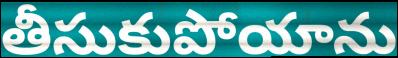
తీసుకుపోయాను